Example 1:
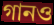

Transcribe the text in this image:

গানও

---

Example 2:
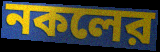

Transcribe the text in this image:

নকলের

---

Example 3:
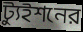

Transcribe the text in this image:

ট্যুইশনের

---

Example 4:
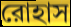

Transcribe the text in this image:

রোহাস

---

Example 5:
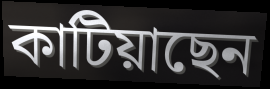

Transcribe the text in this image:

কাটিয়াছেন